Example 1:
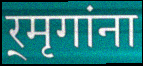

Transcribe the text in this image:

र्मृगांना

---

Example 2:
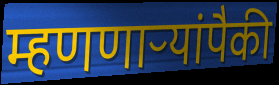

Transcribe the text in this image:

म्हणणाऱ्यांपैकी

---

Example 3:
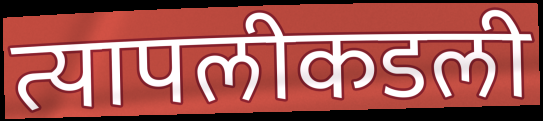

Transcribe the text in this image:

त्यापलीकडली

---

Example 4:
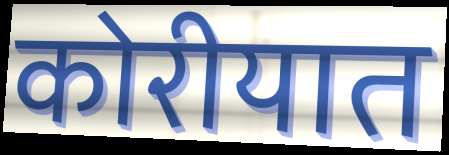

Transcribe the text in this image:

कोरीयात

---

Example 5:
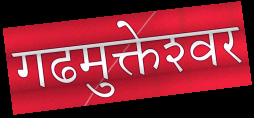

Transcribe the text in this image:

गढमुक्तेश्वर